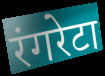
रंगरेटा